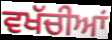
ਵਖੱਚੀਆਂ